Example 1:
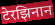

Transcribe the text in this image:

टेरझिनान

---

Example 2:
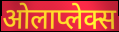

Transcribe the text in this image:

ओलाप्लेक्स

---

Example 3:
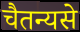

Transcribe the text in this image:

चैतन्यसे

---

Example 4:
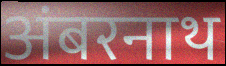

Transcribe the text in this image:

अंबरनाथ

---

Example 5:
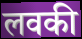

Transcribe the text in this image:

लवकी